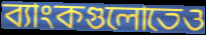
ব্যাংকগুলোতেও